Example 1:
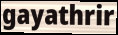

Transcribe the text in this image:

gayathrir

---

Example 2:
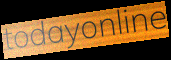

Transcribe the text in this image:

todayonline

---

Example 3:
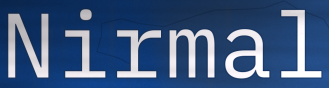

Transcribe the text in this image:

Nirmal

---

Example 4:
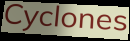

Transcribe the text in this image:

Cyclones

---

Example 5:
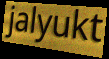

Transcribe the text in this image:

jalyukt